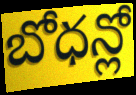
బోధన్లో